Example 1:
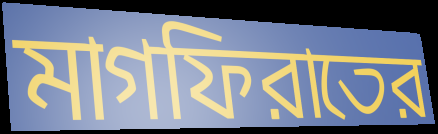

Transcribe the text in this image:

মাগফিরাতের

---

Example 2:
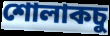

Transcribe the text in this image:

শোলাকচু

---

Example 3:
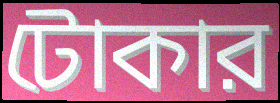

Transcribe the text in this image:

টোকার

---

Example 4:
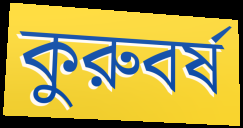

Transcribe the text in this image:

কুরুবর্ষ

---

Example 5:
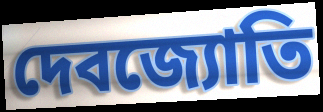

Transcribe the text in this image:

দেবজ্যোতি